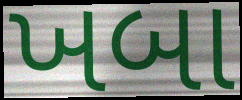
ખબા